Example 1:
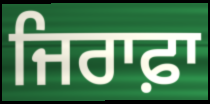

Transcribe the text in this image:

ਜਿਰਾਫ਼ਾ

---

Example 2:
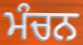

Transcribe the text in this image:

ਮੰਚਨ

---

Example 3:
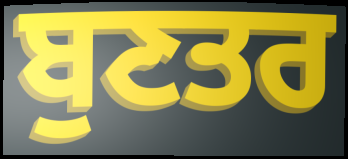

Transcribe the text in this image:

ਬੁਣਤਰ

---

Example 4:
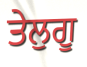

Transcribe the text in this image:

ਤੇਲੁਗੂ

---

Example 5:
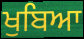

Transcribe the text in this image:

ਖੁਬਿਆ